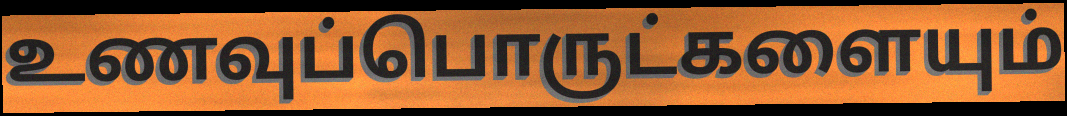
உணவுப்பொருட்களையும்